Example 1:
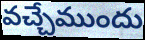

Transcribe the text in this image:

వచ్చేముందు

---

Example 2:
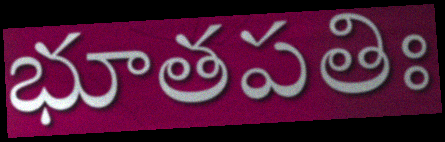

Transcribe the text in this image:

భూతపతిః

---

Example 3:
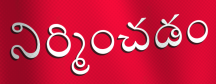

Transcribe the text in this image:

నిర్మించడం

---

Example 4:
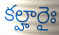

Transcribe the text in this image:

కల్హారైః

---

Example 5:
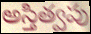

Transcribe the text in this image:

అస్తిత్వపు